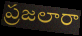
ప్రజలారా